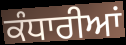
ਕੰਧਾਰੀਆਂ